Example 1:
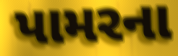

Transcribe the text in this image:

પામરના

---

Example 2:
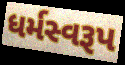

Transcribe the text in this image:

ધર્મસ્વરૂપ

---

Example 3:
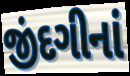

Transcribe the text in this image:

જીંદગીનાં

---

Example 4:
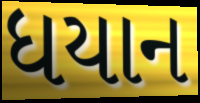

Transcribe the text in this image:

ધયાન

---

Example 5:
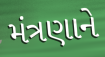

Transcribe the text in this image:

મંત્રણાને